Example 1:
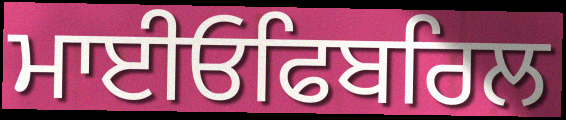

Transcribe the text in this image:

ਮਾਈਓਫਿਬਰਿਲ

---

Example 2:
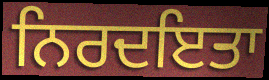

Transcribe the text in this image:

ਨਿਰਦਇਤਾ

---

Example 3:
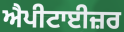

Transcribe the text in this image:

ਐਪੀਟਾਈਜ਼ਰ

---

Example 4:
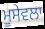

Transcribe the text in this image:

ਮੂਸੇਵਲਾ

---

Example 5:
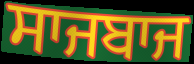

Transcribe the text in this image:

ਸਾਜਬਾਜ